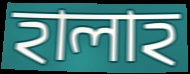
হালাহ